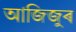
আজিজুৰ